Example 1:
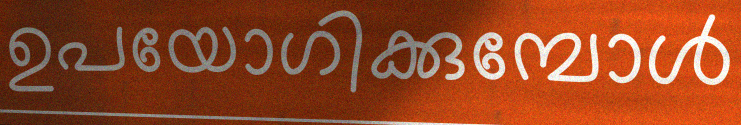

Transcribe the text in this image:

ഉപയോഗിക്കുമ്പോൾ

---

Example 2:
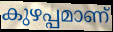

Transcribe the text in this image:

കുഴപ്പമാണ്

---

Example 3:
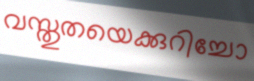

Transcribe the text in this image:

വസ്തുതയെക്കുറിച്ചോ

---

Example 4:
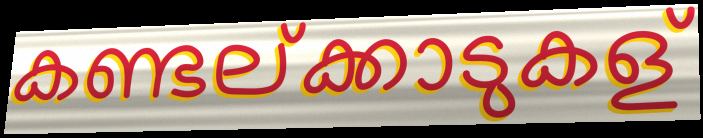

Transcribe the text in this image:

കണ്ടല്ക്കാടുകള്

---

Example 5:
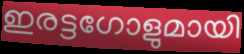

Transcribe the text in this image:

ഇരട്ടഗോളുമായി